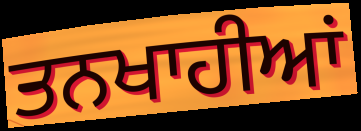
ਤਨਖਾਹੀਆਂ